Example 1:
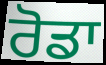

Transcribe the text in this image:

ਰੋਡਾ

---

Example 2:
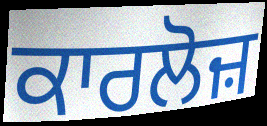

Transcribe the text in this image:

ਕਾਰਲੋਜ਼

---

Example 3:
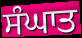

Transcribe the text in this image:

ਸੰਘਾਤ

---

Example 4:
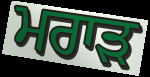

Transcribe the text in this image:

ਮਰਾੜ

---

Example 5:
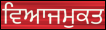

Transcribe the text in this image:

ਵਿਆਜਮੁਕਤ